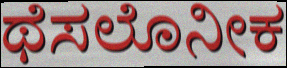
ಥೆಸಲೊನೀಕ